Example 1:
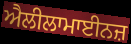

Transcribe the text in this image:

ਐਲੀਲਾਮਾਈਨਜ਼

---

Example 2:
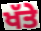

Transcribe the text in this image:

ਖੱਤੇ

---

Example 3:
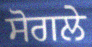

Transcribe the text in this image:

ਸੋਗਲੇ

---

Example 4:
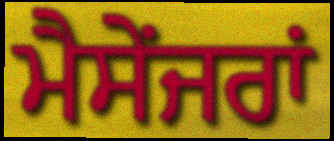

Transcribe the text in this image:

ਮੈਸੇਂਜਰਾਂ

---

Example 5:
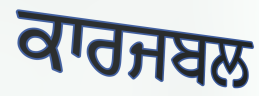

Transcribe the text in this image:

ਕਾਰਜਬਲ